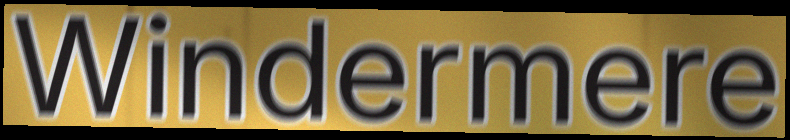
Windermere